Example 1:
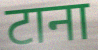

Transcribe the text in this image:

टाना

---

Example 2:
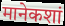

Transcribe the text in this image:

मानेकशां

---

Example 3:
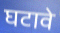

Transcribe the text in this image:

घटावे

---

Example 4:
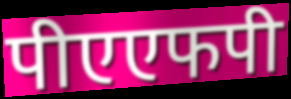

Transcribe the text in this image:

पीएएफपी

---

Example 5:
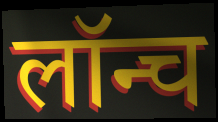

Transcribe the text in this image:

लॉन्च